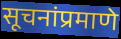
सूचनांप्रमाणे